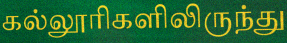
கல்லூரிகளிலிருந்து